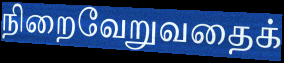
நிறைவேறுவதைக்